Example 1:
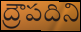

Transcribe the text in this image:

ద్రౌపదిని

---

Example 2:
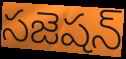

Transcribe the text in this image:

సజెషన్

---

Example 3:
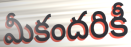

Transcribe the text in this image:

మీకందరికీ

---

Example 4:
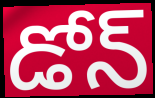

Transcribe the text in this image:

డోన్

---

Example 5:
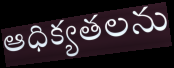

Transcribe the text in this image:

ఆధిక్యతలను